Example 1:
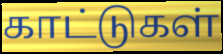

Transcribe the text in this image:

காட்டுகள்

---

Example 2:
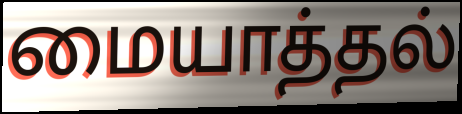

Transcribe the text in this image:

மையாத்தல்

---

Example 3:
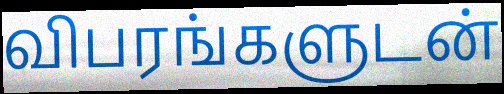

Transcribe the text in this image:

விபரங்களுடன்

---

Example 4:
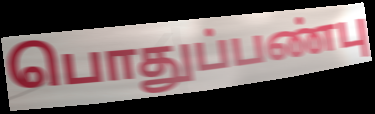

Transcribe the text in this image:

பொதுப்பண்பு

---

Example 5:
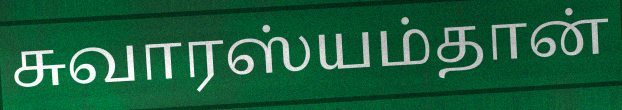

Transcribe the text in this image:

சுவாரஸ்யம்தான்